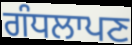
ਗੰਧਲਾਪਣ